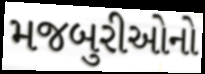
મજબુરીઓનો